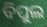
ବିପୁଲ